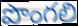
పొంగలి